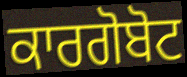
ਕਾਰਗੋਬੋਟ